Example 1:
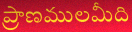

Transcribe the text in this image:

ప్రాణములమీది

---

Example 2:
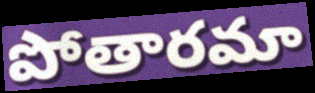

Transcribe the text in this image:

పోతారమా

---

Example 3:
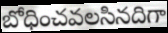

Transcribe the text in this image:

బోధించవలసినదిగా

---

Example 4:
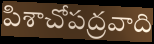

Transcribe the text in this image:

పిశాచోపద్రవాది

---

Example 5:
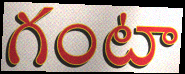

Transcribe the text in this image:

గంటా